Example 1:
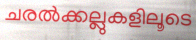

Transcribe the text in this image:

ചരൽക്കല്ലുകളിലൂടെ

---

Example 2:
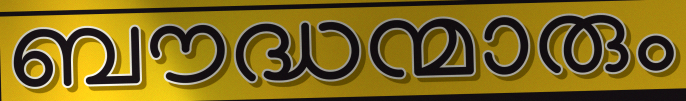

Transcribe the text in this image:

ബൗദ്ധന്മാരും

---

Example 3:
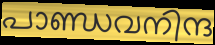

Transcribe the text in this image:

പാണ്ഡവനിന്ദ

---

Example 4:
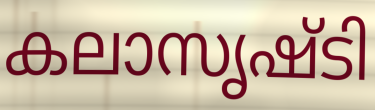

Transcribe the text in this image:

കലാസൃഷ്ടി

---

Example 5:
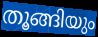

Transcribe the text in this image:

തൂങ്ങിയും